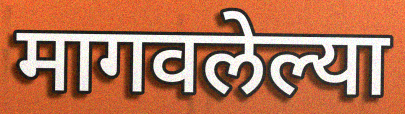
मागवलेल्या